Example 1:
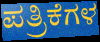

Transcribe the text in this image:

ಪತ್ರಿಕೆಗಳ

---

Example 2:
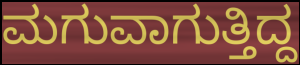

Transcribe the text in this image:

ಮಗುವಾಗುತ್ತಿದ್ದ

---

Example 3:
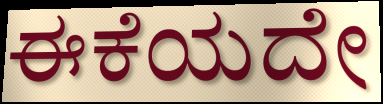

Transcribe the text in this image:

ಈಕೆಯದೇ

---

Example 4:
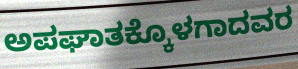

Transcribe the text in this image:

ಅಪಘಾತಕ್ಕೊಳಗಾದವರ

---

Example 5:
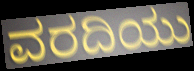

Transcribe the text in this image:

ವರದಿಯು